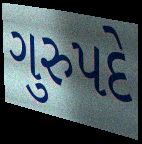
ગુરુપદે